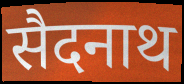
सैदनाथ